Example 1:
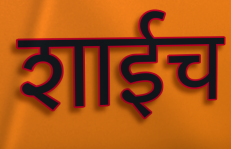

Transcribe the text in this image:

शाईच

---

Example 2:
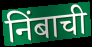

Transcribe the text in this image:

निंबाची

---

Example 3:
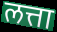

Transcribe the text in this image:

लत्ता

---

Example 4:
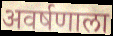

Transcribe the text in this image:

अवर्षणाला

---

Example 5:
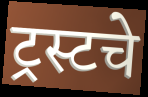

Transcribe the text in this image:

ट्रस्टचे